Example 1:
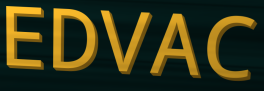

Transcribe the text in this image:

EDVAC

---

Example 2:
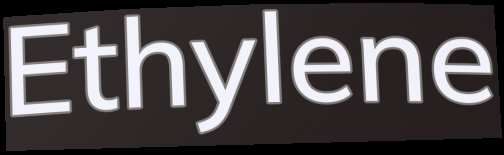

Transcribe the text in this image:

Ethylene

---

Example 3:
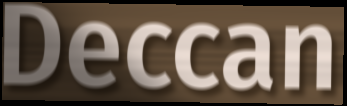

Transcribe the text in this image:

Deccan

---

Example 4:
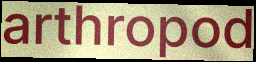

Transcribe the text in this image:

arthropod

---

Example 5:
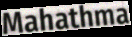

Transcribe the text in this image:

Mahathma